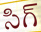
సిగ్